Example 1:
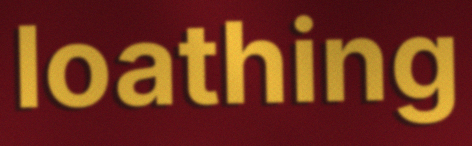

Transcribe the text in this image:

loathing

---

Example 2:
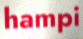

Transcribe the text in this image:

hampi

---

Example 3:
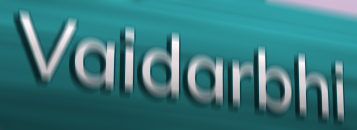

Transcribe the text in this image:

Vaidarbhi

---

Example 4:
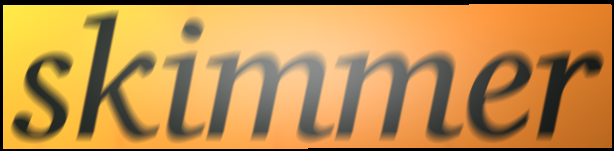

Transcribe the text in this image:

skimmer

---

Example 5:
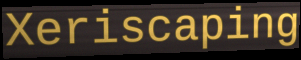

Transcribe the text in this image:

Xeriscaping